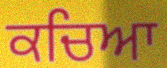
ਕਚਿਆ